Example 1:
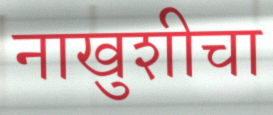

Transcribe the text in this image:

नाखुशीचा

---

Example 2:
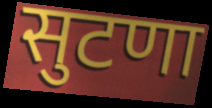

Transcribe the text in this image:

सुटणा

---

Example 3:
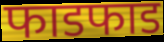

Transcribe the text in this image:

फाडफाड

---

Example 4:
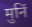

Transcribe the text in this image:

मुनिं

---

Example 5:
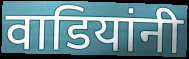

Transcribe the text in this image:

वाडियांनी